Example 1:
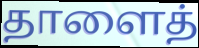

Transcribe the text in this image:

தாளைத்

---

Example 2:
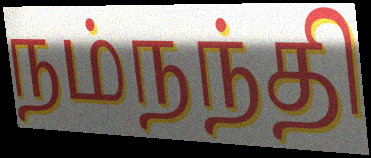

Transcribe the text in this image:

நம்நந்தி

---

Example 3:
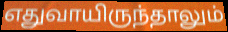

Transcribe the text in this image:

எதுவாயிருந்தாலும்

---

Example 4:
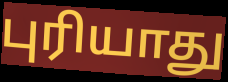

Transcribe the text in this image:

புரியாது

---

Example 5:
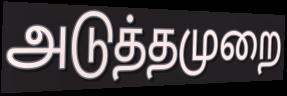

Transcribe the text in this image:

அடுத்தமுறை